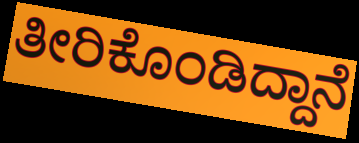
ತೀರಿಕೊಂಡಿದ್ದಾನೆ